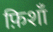
फ़िशाँ